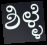
ಶಿಳ್ಳೆ